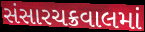
સંસારચક્રવાલમાં